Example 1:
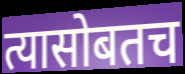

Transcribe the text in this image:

त्यासोबतच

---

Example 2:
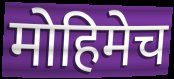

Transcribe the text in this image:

मोहिमेच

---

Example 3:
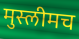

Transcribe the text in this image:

मुस्लीमच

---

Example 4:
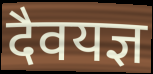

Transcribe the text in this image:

दैवयज्ञ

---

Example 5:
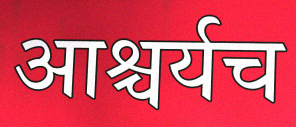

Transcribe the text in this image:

आश्चर्यच